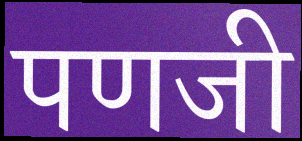
पणजी